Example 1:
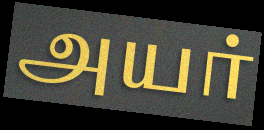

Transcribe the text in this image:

அயர்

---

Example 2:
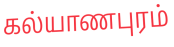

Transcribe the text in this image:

கல்யாணபுரம்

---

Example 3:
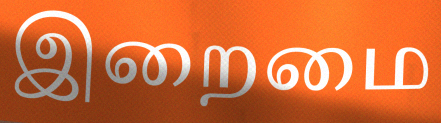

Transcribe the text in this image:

இறைமை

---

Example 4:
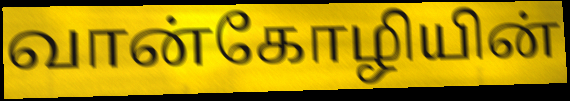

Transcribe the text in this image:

வான்கோழியின்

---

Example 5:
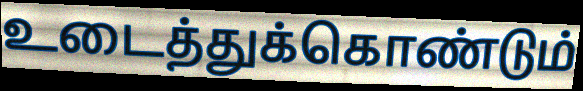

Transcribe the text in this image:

உடைத்துக்கொண்டும்